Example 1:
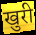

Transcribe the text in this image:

खुरी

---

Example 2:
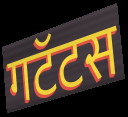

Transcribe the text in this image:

गटॅटस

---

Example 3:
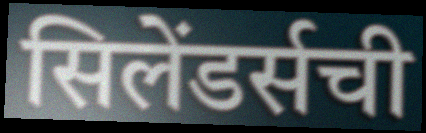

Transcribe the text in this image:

सिलेंडर्सची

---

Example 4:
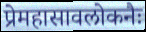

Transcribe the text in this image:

प्रेमहासावलोकनैः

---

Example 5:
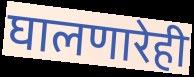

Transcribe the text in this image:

घालणारेही